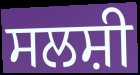
ਸਲਸ਼ੀ